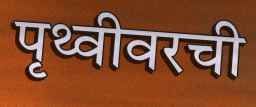
पृथ्वीवरची